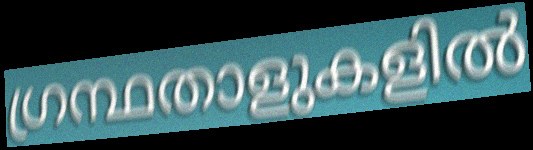
ഗ്രന്ഥതാളുകളിൽ